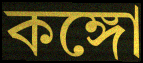
কঙ্গো